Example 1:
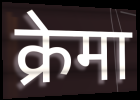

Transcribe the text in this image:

क्रेमा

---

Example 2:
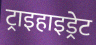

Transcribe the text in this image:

ट्राइहाइड्रेट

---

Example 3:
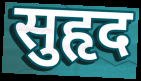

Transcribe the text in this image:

सुहृद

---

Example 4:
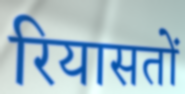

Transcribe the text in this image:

रियासतों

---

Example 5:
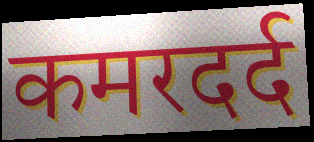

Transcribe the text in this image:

कमरदर्द